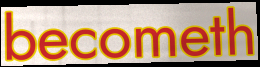
becometh